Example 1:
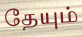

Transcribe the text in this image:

தேயும்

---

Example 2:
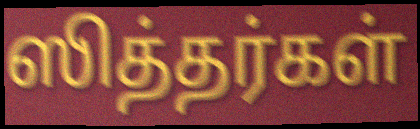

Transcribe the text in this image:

ஸித்தர்கள்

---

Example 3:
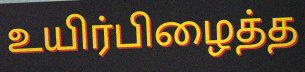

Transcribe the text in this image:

உயிர்பிழைத்த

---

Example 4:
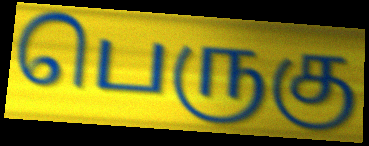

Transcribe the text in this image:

பெருகு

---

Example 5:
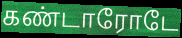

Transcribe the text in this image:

கண்டாரோடே